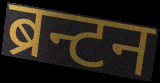
ब्रन्टन